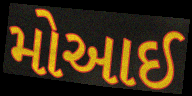
મોઆઈ